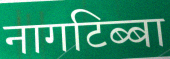
नागटिब्बा